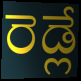
రెడ్లే